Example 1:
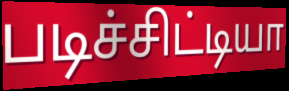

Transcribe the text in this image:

படிச்சிட்டியா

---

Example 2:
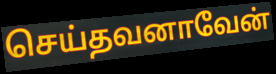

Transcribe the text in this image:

செய்தவனாவேன்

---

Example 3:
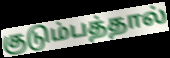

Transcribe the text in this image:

குடும்பத்தால்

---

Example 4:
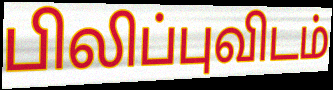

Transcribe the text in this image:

பிலிப்புவிடம்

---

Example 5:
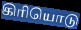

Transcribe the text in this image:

கிரியொடு